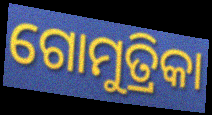
ଗୋମୁତ୍ରିକା